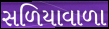
સળિયાવાળા